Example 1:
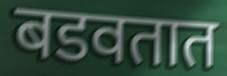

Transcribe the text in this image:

बडवतात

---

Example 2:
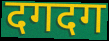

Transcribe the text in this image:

दगदग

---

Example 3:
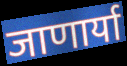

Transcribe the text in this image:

जाणार्या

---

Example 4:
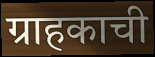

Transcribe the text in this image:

ग्राहकाची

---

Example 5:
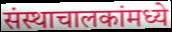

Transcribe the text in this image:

संस्थाचालकांमध्ये